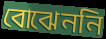
বোঝেননি